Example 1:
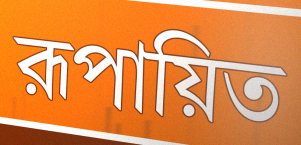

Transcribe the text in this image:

রূপায়িত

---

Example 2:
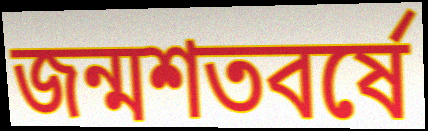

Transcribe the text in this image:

জন্মশতবর্ষে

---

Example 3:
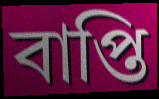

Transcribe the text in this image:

বাপ্তি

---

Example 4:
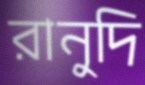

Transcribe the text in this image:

রানুদি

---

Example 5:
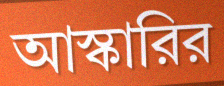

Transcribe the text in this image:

আস্কারির